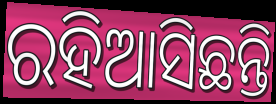
ରହିଆସିଛନ୍ତି